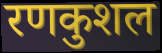
रणकुशल